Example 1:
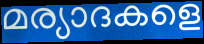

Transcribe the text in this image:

മര്യാദകളെ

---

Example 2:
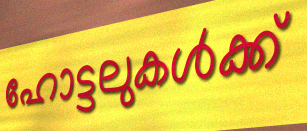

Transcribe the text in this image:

ഹോട്ടലുകൾക്ക്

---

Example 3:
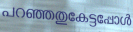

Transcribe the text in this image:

പറഞ്ഞതുകേട്ടപ്പോൾ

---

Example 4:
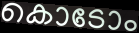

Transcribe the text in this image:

കൊടോം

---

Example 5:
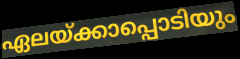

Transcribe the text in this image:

ഏലയ്ക്കാപ്പൊടിയും